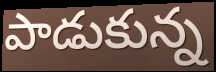
పాడుకున్న